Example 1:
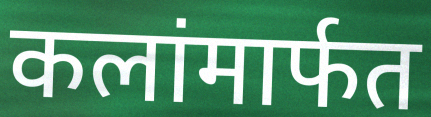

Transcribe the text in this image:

कलांमार्फत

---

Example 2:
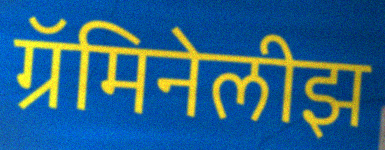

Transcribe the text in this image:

ग्रॅमिनेलीझ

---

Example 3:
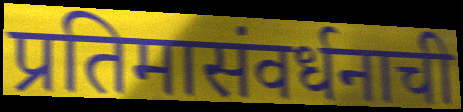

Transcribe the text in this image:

प्रतिमासंवर्धनाची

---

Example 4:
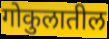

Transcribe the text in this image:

गोकुलातील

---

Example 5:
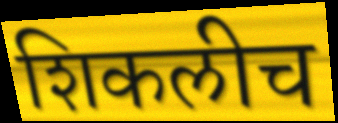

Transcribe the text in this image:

शिकलीच